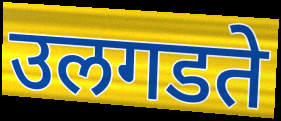
उलगडते